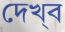
দেখ্‌ব